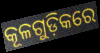
କୂଳଗୁଡ଼ିକରେ